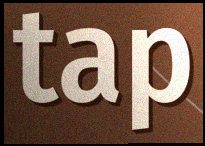
tap